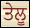
ਤੇਲੂ